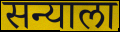
सन्याला